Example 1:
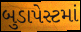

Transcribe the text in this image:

બુડાપેસ્ટમાં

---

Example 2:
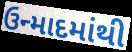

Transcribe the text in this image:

ઉન્માદમાંથી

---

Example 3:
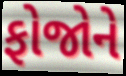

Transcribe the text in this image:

ફોજોને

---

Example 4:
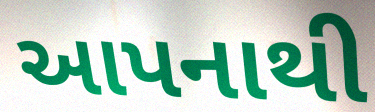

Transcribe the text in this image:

આપનાથી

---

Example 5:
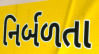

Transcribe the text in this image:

નિર્બળતા